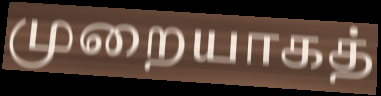
முறையாகத்